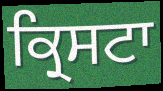
ਕ੍ਰਿਸਟਾ